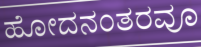
ಹೋದನಂತರವೂ